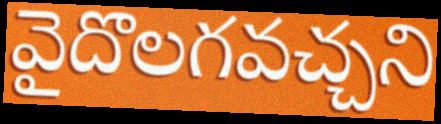
వైదొలగవచ్చని